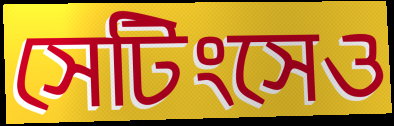
সেটিংসেও